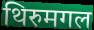
थिरुमगल